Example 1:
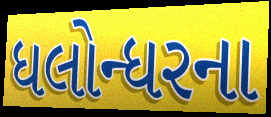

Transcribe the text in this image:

ધલોન્ધરના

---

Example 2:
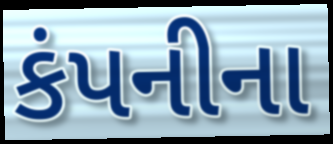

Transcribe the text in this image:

કંપનીના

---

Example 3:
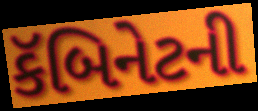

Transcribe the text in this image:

કૅબિનેટની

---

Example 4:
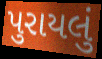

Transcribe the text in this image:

પુરાયલું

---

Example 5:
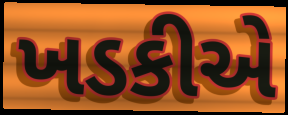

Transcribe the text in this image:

ખડકીએ